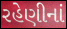
રહેણીનાં